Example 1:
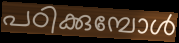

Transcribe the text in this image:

പഠിക്കുമ്പോൾ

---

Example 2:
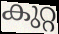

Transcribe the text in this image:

കുറ്റ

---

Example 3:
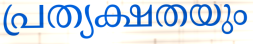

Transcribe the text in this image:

പ്രത്യക്ഷതയും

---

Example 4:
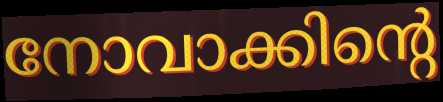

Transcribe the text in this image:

നോവാക്കിന്റെ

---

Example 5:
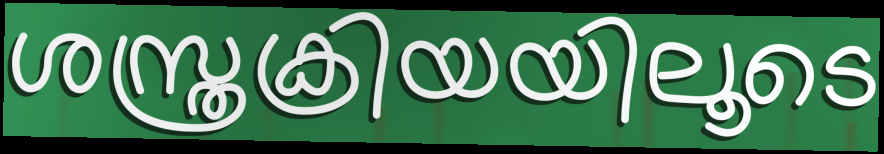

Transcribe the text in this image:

ശസ്ത്രക്രിയയിലൂടെ